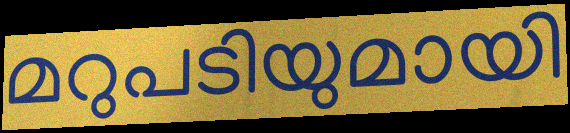
മറുപടിയുമായി